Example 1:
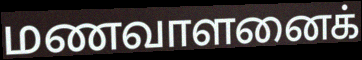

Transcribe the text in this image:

மணவாளனைக்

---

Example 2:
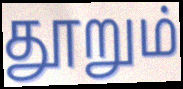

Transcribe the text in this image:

தூறும்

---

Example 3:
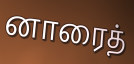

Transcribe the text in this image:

னாரைத்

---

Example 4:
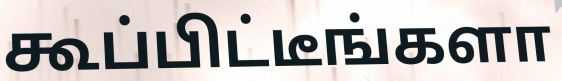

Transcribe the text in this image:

கூப்பிட்டீங்களா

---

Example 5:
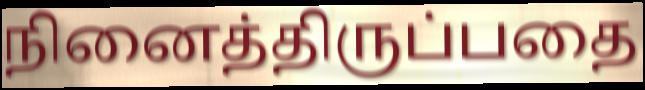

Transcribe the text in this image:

நினைத்திருப்பதை